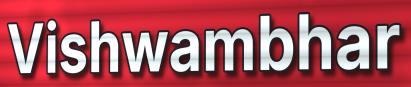
Vishwambhar